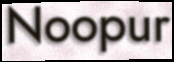
Noopur